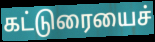
கட்டுரையைச்